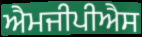
ਐਮਜੀਪੀਐਸ